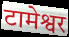
टामेश्वर